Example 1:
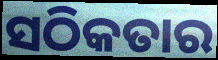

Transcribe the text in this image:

ସଠିକତାର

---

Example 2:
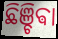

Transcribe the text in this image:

ଛିଞ୍ଚିଵା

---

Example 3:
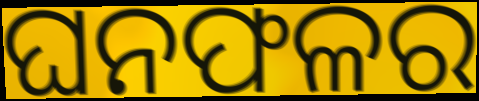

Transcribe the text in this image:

ଘନଫଳର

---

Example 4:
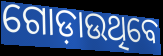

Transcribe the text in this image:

ଗୋଡ଼ାଉଥିବେ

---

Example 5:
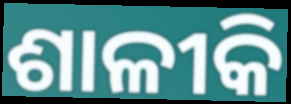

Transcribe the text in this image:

ଶାଳୀକି